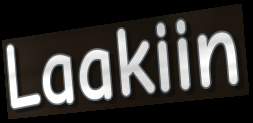
Laakiin